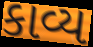
કાવ્ય